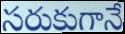
సరుకుగానే